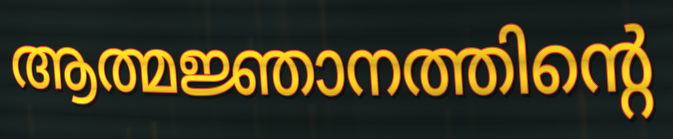
ആത്മജ്ഞാനത്തിന്റെ